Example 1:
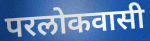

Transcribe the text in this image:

परलोकवासी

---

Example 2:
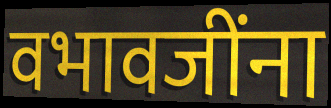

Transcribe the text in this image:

वभावजींना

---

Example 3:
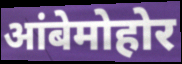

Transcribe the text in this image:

आंबेमोहोर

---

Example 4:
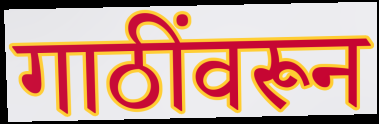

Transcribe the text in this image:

गाठींवरून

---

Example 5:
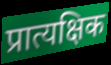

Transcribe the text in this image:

प्रात्यक्षिक